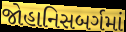
જોહાનિસબર્ગમાં